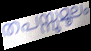
തപസ്സുമൂലം